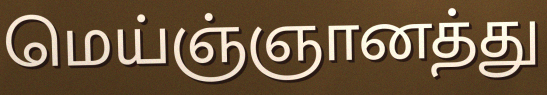
மெய்ஞ்ஞானத்து